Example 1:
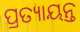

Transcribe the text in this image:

ପ୍ରତ୍ୟାୟନ୍ତ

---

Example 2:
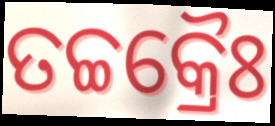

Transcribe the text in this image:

ତଚ୍ଚକ୍ରୈଃ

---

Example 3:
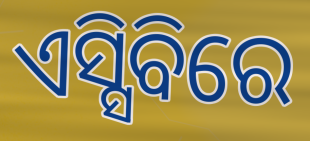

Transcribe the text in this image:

ଏସ୍ସିବିରେ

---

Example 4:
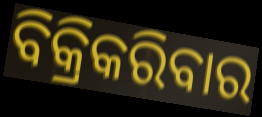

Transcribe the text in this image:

ବିକ୍ରିକରିବାର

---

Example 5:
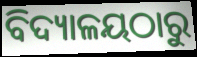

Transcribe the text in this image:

ବିଦ୍ୟାଳୟଠାରୁ